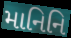
માનિનિ